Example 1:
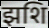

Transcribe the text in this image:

झशि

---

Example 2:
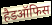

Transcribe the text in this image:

हैडऑफिस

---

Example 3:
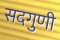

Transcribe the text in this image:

सदगुणी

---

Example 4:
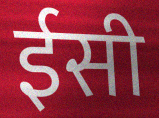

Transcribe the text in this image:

ईसी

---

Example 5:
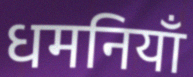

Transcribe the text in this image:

धमनियाँ